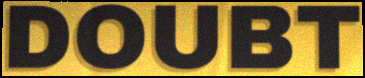
DOUBT